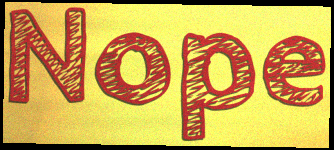
Nope